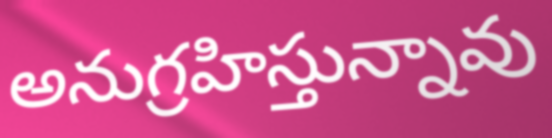
అనుగ్రహిస్తున్నావు